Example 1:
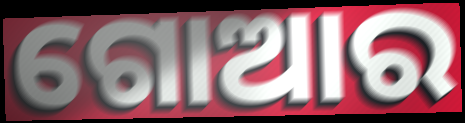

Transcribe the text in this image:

ଗୋଆର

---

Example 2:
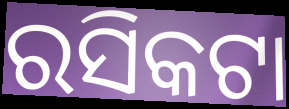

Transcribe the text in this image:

ରସିକଟା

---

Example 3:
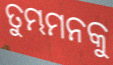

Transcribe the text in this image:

ତୁମ୍ଭମନକୁ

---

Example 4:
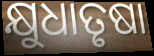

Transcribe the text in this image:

କ୍ଷୁଧାତୃଷା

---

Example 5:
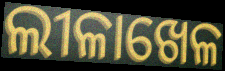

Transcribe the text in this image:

ଲୀଳାଖେଳ